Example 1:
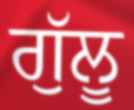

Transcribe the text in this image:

ਗੁੱਲੂ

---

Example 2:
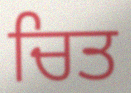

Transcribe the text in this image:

ਚਿਤ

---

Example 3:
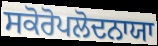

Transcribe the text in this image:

ਸਕੋਰੋਪਲੋਦਨਾਯਾ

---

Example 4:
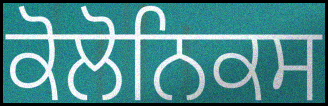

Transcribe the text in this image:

ਕੋਲੋਨਿਕਸ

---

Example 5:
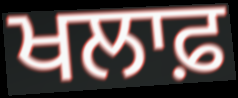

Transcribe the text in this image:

ਖਲਾਫ਼